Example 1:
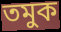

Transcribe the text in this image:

তমুক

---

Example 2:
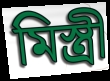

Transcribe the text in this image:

মিস্ত্ৰী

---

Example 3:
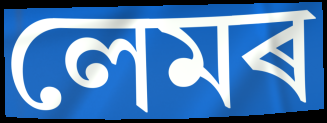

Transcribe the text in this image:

লেমৰ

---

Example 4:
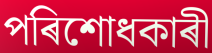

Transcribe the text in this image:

পৰিশোধকাৰী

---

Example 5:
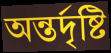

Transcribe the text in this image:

অন্তৰ্দৃষ্টি